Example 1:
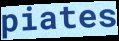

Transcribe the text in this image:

piates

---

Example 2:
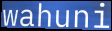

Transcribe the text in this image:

wahuni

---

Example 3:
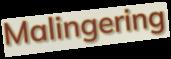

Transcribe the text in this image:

Malingering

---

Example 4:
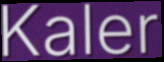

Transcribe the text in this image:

Kaler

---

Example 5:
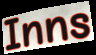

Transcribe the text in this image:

Inns